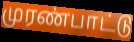
முரண்பாட்டு